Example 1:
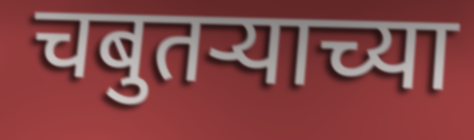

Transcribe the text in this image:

चबुतर्‍याच्या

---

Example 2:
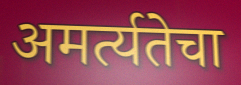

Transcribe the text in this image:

अमर्त्यतेचा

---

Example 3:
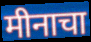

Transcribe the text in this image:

मीनाचा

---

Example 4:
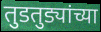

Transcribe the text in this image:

तुडतुड्यांच्या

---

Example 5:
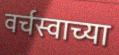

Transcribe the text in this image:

वर्चस्वाच्या